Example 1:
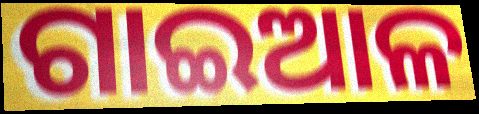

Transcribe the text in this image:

ଗାଇଆଳ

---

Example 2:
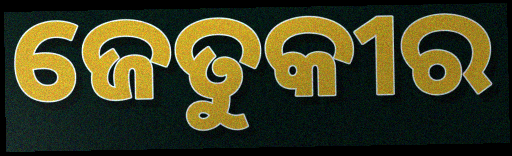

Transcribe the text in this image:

ଜେତୁକୀର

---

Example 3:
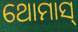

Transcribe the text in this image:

ଥୋମାସ୍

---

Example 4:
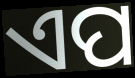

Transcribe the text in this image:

ଏପ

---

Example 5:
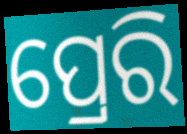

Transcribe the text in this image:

ପ୍ରେରି